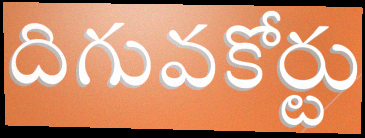
దిగువకోర్టు